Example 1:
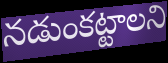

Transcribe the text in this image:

నడుంకట్టాలని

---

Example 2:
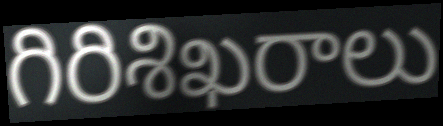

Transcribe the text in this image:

గిరిశిఖరాలు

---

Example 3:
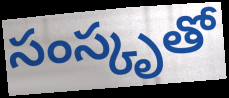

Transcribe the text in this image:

సంస్కృతో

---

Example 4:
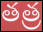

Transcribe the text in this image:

తత్ర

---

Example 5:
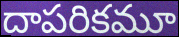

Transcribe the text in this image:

దాపరికమూ